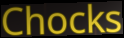
Chocks